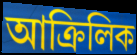
আক্ৰিলিক